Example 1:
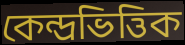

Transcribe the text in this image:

কেন্দ্রভিত্তিক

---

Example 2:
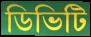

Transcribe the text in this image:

ডিভিটি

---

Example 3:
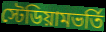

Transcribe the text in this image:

স্টেডিয়ামভর্তি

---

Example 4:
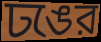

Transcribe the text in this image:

ঢঙের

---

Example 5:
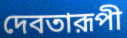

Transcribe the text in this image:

দেবতারূপী